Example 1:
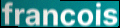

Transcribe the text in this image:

francois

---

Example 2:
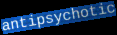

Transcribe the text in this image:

antipsychotic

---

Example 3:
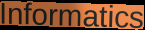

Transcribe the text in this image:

Informatics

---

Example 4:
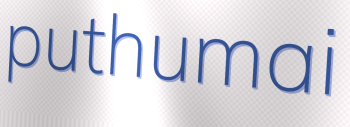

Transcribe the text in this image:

puthumai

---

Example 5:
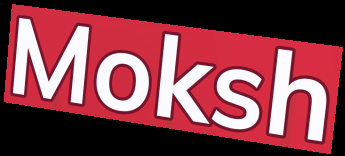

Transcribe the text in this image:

Moksh